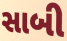
સાબી